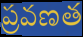
ప్రవణత